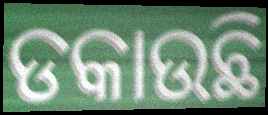
ଡକାଉଛି